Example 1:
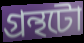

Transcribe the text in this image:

গ্ৰন্থটো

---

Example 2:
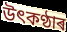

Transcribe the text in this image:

উৎকণ্ঠাৰ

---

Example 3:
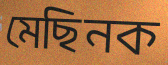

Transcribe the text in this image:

মেছিনক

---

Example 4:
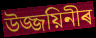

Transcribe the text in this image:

উজ্জয়িনীৰ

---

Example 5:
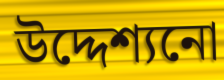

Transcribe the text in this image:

উদ্দেশ্যনো